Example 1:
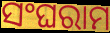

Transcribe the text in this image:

ସଂଘରାମ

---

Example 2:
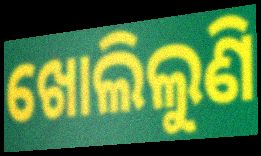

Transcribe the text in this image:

ଖୋଲିଲୁଣି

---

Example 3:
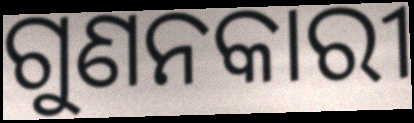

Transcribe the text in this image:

ଗୁଣନକାରୀ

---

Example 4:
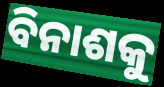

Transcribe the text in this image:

ବିନାଶକୁ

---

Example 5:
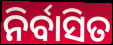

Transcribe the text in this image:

ନିର୍ବାସିତ